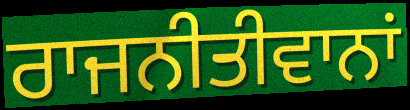
ਰਾਜਨੀਤੀਵਾਨਾਂ